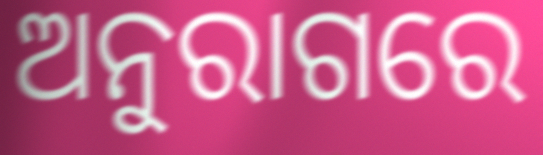
ଅନୁରାଗରେ